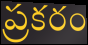
ప్రకరం